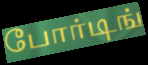
போர்டிங்